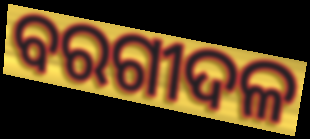
ବରଗୀଦଳ